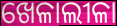
ଖେଳାଲୀଳା